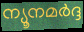
ന്യൂനമർദ്ദ